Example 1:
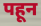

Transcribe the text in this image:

पहून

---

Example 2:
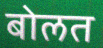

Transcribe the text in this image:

बोलत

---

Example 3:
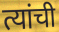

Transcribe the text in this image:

त्यांची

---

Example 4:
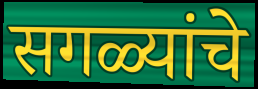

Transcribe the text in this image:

सगळ्यांचे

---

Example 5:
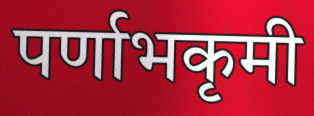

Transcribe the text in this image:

पर्णाभकृमी